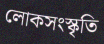
লোকসংস্কৃতি